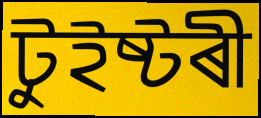
টুইষ্টৰী